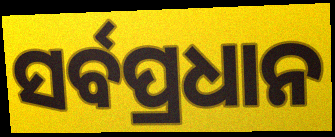
ସର୍ବପ୍ରଧାନ